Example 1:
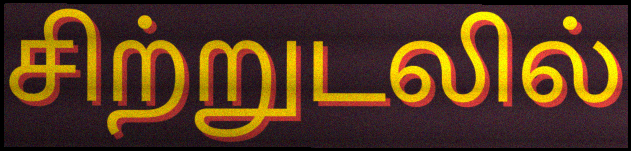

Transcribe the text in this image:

சிற்றுடலில்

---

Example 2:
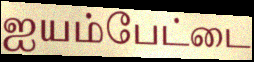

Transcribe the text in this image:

ஐயம்பேட்டை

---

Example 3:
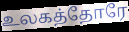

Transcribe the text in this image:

உலகத்தோரே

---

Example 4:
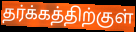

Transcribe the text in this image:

தர்க்கத்திற்குள்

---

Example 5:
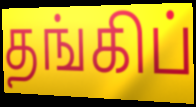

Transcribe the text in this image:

தங்கிப்